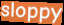
sloppy